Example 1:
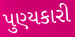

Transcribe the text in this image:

પુણ્યકારી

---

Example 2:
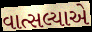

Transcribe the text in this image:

વાત્સલ્યાએ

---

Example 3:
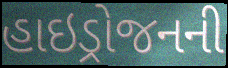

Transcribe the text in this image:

હાઇડ્રોજનની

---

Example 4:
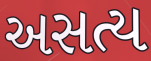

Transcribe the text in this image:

અસત્ય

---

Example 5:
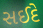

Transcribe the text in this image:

સઈદે